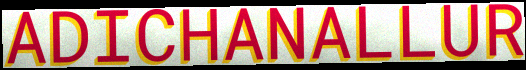
ADICHANALLUR